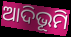
ଆଦିଭୂମି